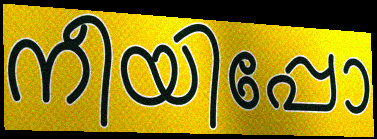
നീയിപ്പോ